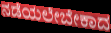
ನಡೆಯಲೇಬೇಕಾದ